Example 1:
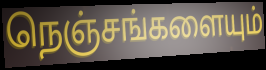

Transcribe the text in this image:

நெஞ்சங்களையும்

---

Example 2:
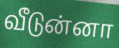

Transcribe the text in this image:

வீடுன்னா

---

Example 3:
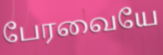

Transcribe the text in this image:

பேரவையே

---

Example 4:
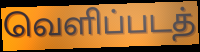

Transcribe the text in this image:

வெளிப்படத்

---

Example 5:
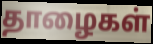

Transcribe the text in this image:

தாழைகள்